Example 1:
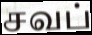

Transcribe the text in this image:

சவப்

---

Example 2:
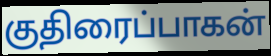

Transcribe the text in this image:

குதிரைப்பாகன்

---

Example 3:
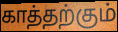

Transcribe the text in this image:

காத்தற்கும்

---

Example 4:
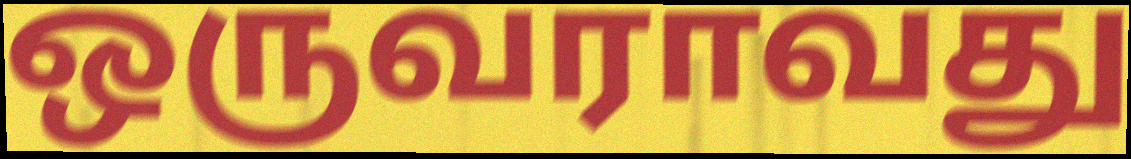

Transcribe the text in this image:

ஒருவராவது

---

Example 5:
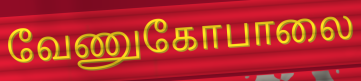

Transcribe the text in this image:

வேணுகோபாலை